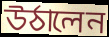
উঠালেন